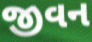
જીવન